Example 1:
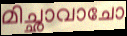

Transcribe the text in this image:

മിച്ഛാവാചോ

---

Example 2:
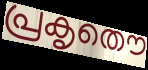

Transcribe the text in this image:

പ്രകൃതൌ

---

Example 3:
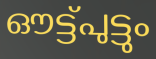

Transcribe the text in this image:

ഔട്ട്പുട്ടും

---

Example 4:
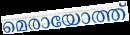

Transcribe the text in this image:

മെരായോത്ത്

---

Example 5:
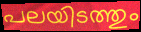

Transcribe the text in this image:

പലയിടത്തും